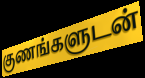
குணங்களுடன்